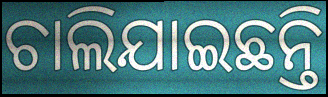
ଚାଲିଯାଇଛନ୍ତି